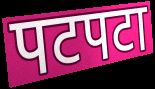
पटपटा